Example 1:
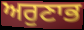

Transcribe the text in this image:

ਅਰੁਣਾਭ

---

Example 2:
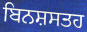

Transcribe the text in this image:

ਬਿਨਸ਼ਸਤਹ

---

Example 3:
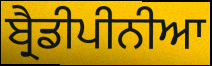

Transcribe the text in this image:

ਬ੍ਰੈਡੀਪੀਨੀਆ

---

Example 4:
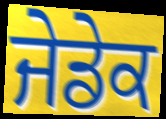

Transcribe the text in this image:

ਜੇਡੇਕ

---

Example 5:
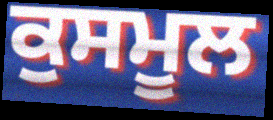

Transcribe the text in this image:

ਕੁਸਮੂਲ